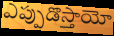
ఎప్పుడొస్తాయో